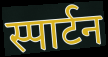
स्पार्टन